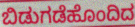
ಬಿಡುಗಡೆಹೊಂದಿದ